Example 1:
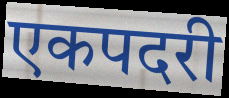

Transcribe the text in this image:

एकपदरी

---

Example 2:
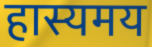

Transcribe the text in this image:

हास्यमय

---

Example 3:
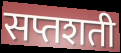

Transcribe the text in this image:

सप्तशती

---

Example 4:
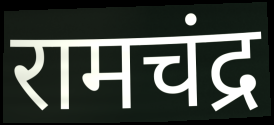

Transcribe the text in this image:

रामचंद्र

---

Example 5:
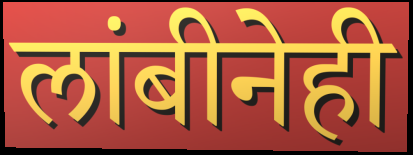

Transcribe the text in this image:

लांबीनेही